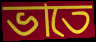
ভাতে